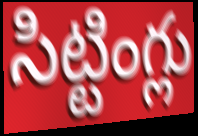
సిట్టింగ్లు